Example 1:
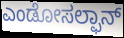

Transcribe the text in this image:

ಎಂಡೋಸಲ್ಫಾನ್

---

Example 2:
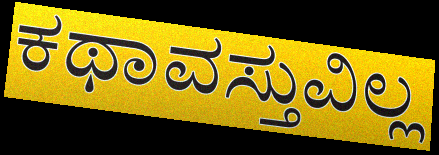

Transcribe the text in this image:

ಕಥಾವಸ್ತುವಿಲ್ಲ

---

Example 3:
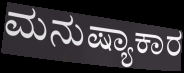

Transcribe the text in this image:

ಮನುಷ್ಯಾಕಾರ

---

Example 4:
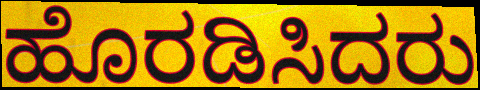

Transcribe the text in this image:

ಹೊರಡಿಸಿದರು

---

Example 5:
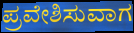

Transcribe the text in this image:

ಪ್ರವೇಶಿಸುವಾಗ